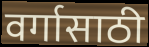
वर्गासाठी